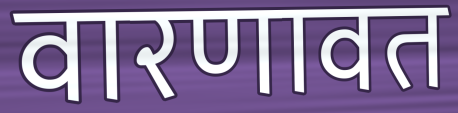
वारणावत